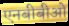
एनबीबीओ